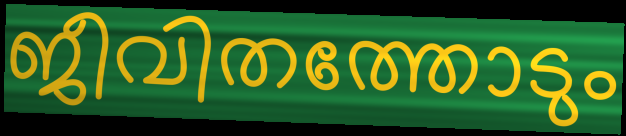
ജീവിതത്തോടും